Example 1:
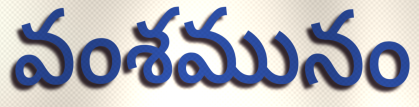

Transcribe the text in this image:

వంశమునం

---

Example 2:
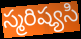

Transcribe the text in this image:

స్మరిష్యసి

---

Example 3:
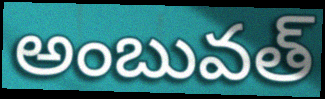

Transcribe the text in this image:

అంబువత్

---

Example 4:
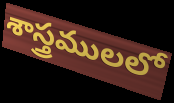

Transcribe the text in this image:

శాస్త్రములలో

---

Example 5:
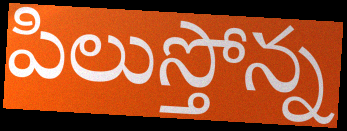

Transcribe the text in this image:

పిలుస్తోన్న